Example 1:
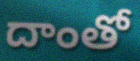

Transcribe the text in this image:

దాంతో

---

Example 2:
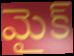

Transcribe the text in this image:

మైక్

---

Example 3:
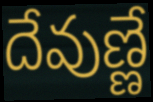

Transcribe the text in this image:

దేవుణ్ణే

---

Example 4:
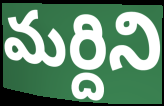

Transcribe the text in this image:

మర్దిని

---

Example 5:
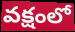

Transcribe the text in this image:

వక్షంలో